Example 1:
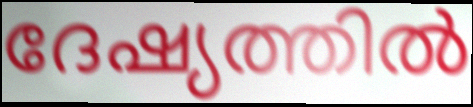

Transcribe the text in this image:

ദേഷ്യത്തിൽ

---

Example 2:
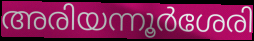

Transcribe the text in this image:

അരിയന്നൂർശേരി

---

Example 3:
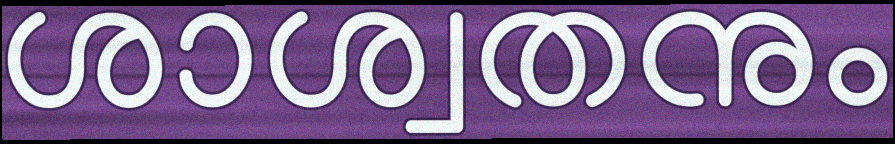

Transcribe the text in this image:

ശാശ്വതനും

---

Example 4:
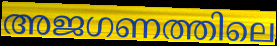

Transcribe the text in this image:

അജഗണത്തിലെ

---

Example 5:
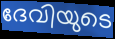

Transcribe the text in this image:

ദേവിയുടെ